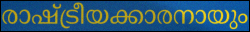
രാഷ്ട്രീയക്കാരനായും